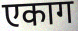
एकाग